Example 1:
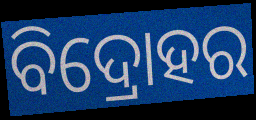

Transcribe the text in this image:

ବିଦ୍ରୋହର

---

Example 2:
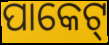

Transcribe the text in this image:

ପାକେଟ୍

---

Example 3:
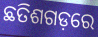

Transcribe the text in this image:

ଛତିଶଗଡ଼ରେ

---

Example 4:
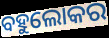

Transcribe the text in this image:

ବହୁଲୋକର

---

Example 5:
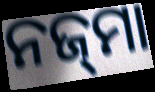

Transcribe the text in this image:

ନଜ୍‌ମା